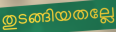
തുടങ്ങിയതല്ലേ